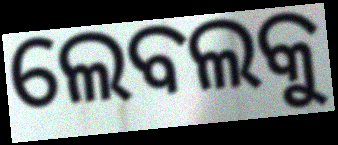
ଲେବଲକୁ